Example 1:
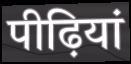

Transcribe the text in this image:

पीढ़ियां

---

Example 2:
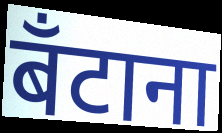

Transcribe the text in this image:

बँटाना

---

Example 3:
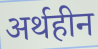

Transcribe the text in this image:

अर्थहीन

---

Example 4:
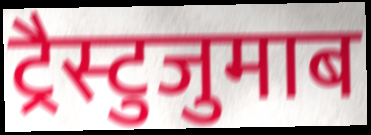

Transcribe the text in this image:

ट्रैस्टुजुमाब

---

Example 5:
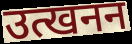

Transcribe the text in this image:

उत्खनन